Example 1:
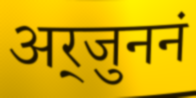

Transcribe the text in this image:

अर्जुननं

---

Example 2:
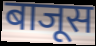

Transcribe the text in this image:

बाजूस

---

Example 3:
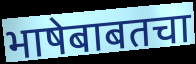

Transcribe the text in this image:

भाषेबाबतचा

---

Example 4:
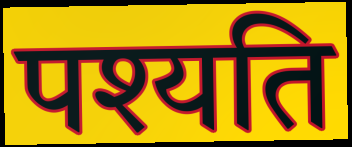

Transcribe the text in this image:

पश्यति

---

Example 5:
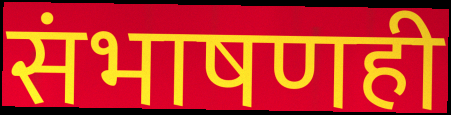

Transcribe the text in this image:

संभाषणही